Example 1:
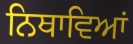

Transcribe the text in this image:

ਨਿਥਾਵਿਆਂ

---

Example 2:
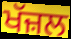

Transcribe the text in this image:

ਖੱਜ਼ਲ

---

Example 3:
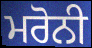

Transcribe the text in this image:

ਮਰੋਨੀ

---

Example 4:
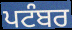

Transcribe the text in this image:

ਪਟੰਬਰ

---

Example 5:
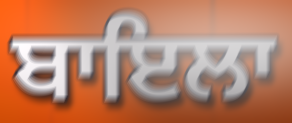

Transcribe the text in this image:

ਬਾਇਲਾ